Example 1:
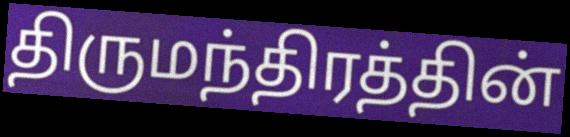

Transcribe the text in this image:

திருமந்திரத்தின்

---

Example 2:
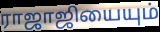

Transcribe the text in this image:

ராஜாஜியையும்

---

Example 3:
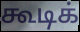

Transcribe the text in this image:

கூடிக்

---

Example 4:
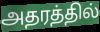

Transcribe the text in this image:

அதரத்தில்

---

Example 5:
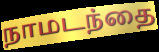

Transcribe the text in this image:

நாமடந்தை